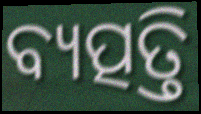
ବ୍ୟତ୍ପତ୍ତି